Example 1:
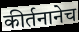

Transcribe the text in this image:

कीर्तनानेच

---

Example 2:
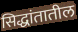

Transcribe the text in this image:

सिद्धांतातील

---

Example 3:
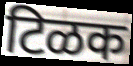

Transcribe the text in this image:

टिळक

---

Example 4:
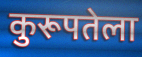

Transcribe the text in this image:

कुरूपतेला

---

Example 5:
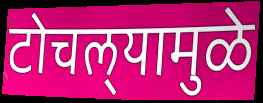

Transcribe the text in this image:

टोचल्यामुळे